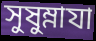
সুষুম্নাযা